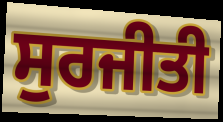
ਸੁਰਜੀਤੀ